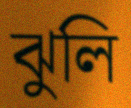
ঝুলি